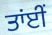
ਤਾਂਈਂ